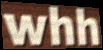
whh